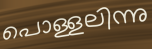
പൊള്ളലിന്നു